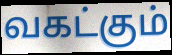
வகட்கும்